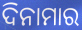
ଦିନାମାର